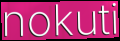
nokuti